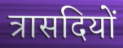
त्रासदियों